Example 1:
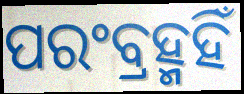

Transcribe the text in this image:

ପରଂବ୍ରହ୍ମହିଁ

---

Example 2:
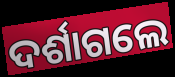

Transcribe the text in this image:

ଦର୍ଶାଗଲେ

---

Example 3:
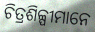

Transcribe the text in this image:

ଚିତ୍ରଶିଳ୍ପୀମାନେ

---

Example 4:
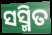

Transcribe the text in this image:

ସସ୍ମିତ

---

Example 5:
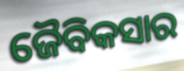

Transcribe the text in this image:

ଜୈବିକସାର